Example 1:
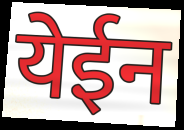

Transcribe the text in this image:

येईन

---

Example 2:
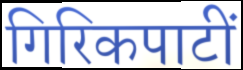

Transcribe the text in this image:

गिरिकपाटीं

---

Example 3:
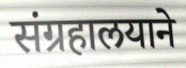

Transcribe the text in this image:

संग्रहालयाने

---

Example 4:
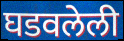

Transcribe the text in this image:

घडवलेली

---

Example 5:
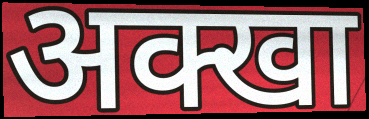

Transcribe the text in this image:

अक्खा